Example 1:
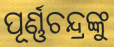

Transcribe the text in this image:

ପୂର୍ଣ୍ଣଚନ୍ଦ୍ରଙ୍କୁ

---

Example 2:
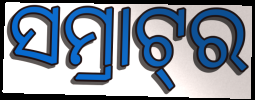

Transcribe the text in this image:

ସମ୍ରାଟ୍‌ର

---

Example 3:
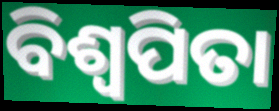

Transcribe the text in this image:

ବିଶ୍ଵପିତା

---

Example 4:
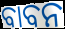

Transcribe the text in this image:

ବାବନ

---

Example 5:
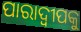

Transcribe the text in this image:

ପାରାଦ୍ୱୀପକୁ